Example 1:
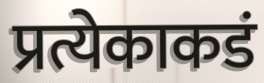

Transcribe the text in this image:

प्रत्येकाकडं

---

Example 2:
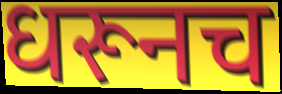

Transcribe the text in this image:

धरूनच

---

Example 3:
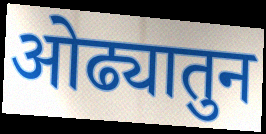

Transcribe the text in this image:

ओढ्यातुन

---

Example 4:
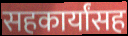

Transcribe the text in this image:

सहकार्यांसह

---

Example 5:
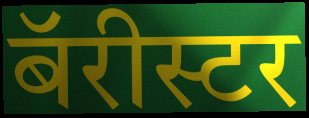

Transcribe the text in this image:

बॅरीस्टर